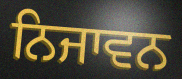
ਨਿਜਾਵਨ